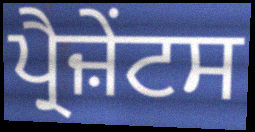
ਪ੍ਰੈਜ਼ੇਂਟਸ